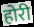
होरी